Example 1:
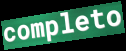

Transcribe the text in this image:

completo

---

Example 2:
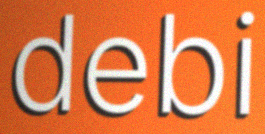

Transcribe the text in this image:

debi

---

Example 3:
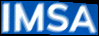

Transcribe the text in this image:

IMSA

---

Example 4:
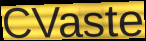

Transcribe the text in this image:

CVaste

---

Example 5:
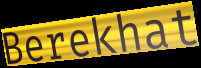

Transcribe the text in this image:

Berekhat